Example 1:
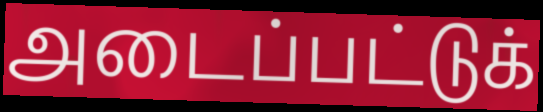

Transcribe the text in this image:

அடைப்பட்டுக்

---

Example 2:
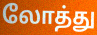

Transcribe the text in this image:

லோத்து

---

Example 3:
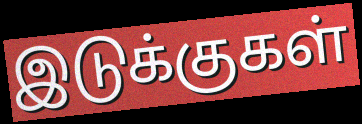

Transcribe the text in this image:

இடுக்குகள்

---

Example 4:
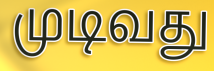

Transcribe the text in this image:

முடிவது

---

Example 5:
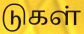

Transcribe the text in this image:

டுகள்